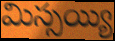
మిస్సయ్యి